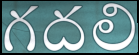
గదలి